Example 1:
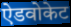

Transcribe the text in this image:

ऐडवोकेट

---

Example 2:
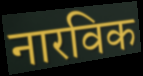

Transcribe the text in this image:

नारविक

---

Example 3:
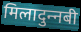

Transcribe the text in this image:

मिलादुन्नबी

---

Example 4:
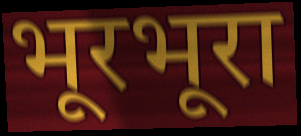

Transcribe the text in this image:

भूरभूरा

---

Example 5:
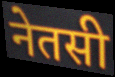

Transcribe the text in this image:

नेतसी